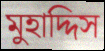
মুহাদ্দিস